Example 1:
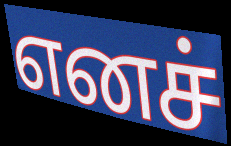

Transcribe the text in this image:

எனச்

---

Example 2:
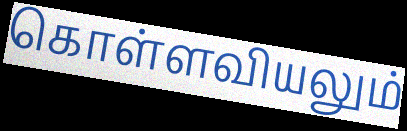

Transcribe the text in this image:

கொள்ளவியலும்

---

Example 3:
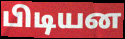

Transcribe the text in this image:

பிடியன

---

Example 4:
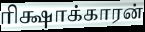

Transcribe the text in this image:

ரிக்ஷாக்காரன்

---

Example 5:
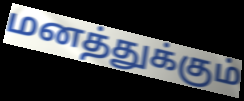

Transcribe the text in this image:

மனத்துக்கும்